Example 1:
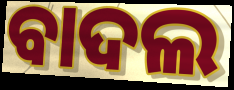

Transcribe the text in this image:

ବାଦଲ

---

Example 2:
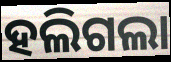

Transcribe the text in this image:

ହଲିଗଲା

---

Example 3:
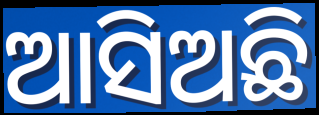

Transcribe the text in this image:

ଆସିଅଛି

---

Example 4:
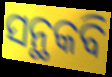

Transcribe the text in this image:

ସନ୍ଥକବି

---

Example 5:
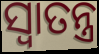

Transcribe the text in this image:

ସ୍ୱାତନ୍ତ୍ର